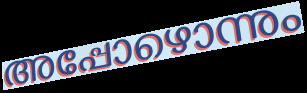
അപ്പോഴൊന്നും